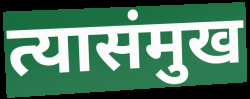
त्यासंमुख